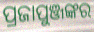
ପ୍ରଜାପୁଞ୍ଜଙ୍କର